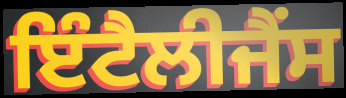
ਇੰਟੈਲੀਜੈਂਸ